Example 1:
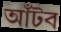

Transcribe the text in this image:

আঁটব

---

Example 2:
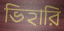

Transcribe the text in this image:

ভিহারি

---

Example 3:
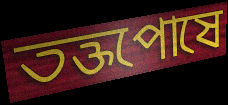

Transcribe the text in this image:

তক্তপোষে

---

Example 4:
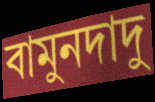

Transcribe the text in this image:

বামুনদাদু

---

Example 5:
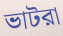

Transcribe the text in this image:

ভাটরা